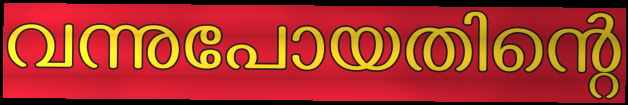
വന്നുപോയതിന്റെ